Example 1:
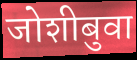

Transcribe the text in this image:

जोशीबुवा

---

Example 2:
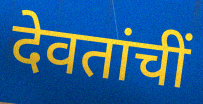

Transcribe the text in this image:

देवतांचीं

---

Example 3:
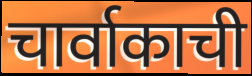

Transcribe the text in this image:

चार्वाकाची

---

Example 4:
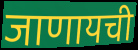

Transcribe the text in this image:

जाणायची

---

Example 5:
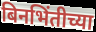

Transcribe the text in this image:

बिनभिंतीच्या